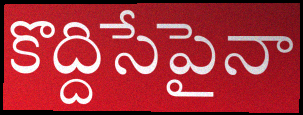
కొద్దిసేపైనా